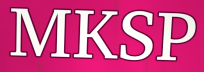
MKSP